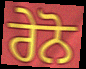
ਰੇਨੋ